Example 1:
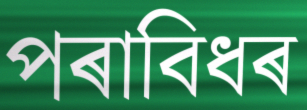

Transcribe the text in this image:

পৰাবিধৰ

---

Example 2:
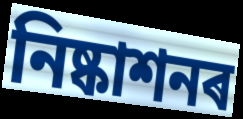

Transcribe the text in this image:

নিষ্কাশনৰ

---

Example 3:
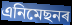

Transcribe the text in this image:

এনিমেছনৰ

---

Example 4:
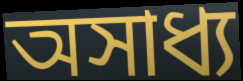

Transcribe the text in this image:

অসাধ্য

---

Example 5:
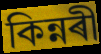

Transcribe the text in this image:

কিন্নৰী